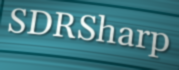
SDRSharp